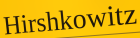
Hirshkowitz